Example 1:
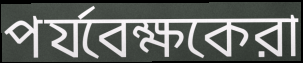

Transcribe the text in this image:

পর্যবেক্ষকেরা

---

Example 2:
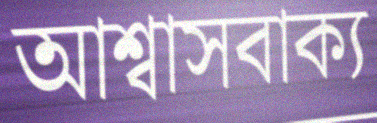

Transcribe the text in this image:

আশ্বাসবাক্য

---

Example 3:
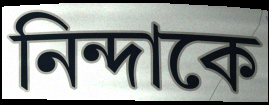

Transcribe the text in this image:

নিন্দাকে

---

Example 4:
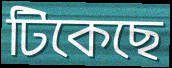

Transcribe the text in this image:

টিকেছে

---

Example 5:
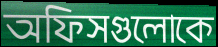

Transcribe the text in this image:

অফিসগুলোকে